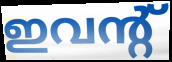
ഇവന്റ്